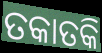
ତକାତକି